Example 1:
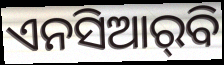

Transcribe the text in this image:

ଏନସିଆର୍‌ବି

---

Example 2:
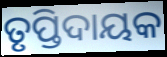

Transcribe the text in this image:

ତୃପ୍ତିଦାୟକ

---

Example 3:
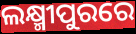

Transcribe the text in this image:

ଲକ୍ଷ୍ମୀପୁରରେ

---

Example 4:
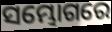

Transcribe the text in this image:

ସମ୍ଭୋଗରେ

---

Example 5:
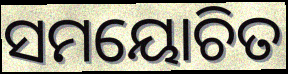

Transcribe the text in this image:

ସମୟୋଚିତ